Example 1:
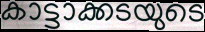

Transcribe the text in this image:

കാട്ടാക്കടയുടെ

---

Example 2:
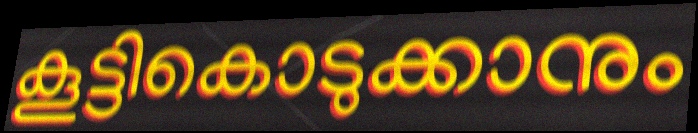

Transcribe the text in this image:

കൂട്ടികൊടുക്കാനും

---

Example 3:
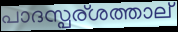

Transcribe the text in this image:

പാദസ്പര്ശത്താല്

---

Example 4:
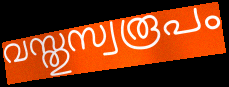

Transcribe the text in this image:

വസ്തുസ്വരൂപം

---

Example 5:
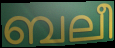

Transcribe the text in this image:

ബലീ